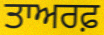
ਤਾਅਰਫ਼